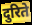
दुरिते